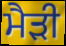
ਮੈੜੀ